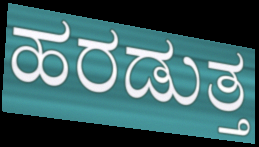
ಹರಡುತ್ತ